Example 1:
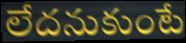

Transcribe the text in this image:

లేదనుకుంటే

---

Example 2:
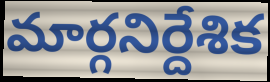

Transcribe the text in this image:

మార్గనిర్దేశిక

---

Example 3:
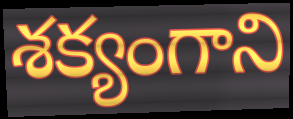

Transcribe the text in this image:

శక్యంగాని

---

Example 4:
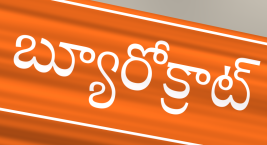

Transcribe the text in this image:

బ్యూరోక్రాట్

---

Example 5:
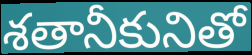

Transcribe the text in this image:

శతానీకునితో